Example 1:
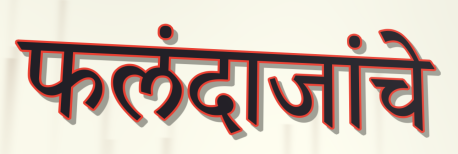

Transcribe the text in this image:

फलंदाजांचे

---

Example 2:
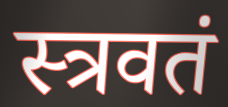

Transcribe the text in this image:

स्त्रवतं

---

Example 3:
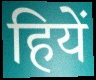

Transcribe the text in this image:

हियें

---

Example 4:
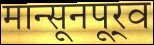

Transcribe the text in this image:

मान्सूनपूर्व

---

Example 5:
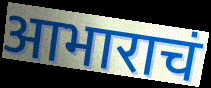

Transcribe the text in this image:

आभाराचं